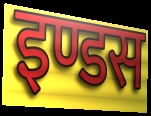
इण्डस